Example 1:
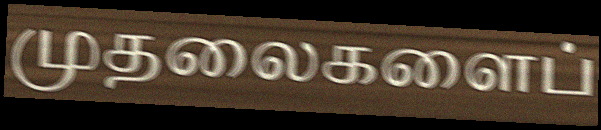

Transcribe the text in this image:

முதலைகளைப்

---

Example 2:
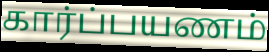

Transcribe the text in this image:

கார்ப்பயணம்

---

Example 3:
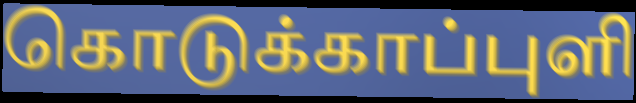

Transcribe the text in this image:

கொடுக்காப்புளி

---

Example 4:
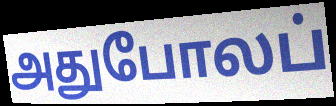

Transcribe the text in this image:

அதுபோலப்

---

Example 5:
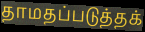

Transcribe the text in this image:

தாமதப்படுத்தக்